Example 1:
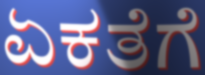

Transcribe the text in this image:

ಏಕತೆಗೆ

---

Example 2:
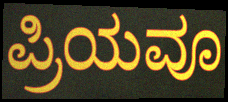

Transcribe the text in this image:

ಪ್ರಿಯವೂ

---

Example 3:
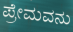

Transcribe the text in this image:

ಪ್ರೇಮವನು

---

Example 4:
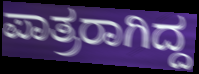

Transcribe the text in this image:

ಪಾತ್ರರಾಗಿದ್ದ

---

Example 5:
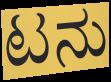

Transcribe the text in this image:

ಟನು